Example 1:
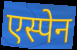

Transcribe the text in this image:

एस्पेन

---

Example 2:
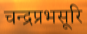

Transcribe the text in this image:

चन्द्रप्रभसूरि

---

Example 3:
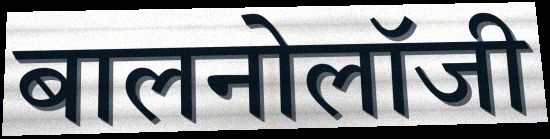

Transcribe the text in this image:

बालनोलॉजी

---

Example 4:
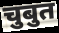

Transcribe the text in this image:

चुबुत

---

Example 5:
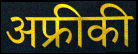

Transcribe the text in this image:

अफ्रीकी